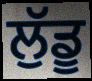
ਲੁੱਡੂ